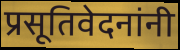
प्रसूतिवेदनांनी